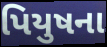
પિયુષના